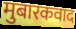
मुबारकवाद